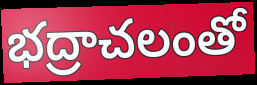
భద్రాచలంతో